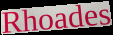
Rhoades